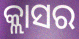
କ୍ଲାସର